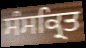
ਸੰਸਕ੍ਰਿਤ